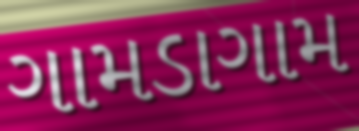
ગામડાગામ